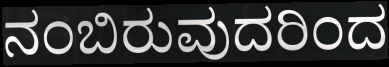
ನಂಬಿರುವುದರಿಂದ